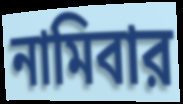
নামিবার